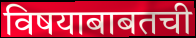
विषयाबाबतची